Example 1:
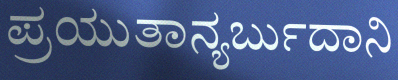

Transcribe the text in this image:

ಪ್ರಯುತಾನ್ಯರ್ಬುದಾನಿ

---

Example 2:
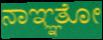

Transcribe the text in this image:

ನಾಞ್ಞತೋ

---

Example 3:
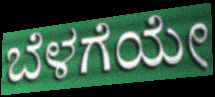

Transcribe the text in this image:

ಬೆಳಗೆಯೇ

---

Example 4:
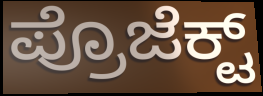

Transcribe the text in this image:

ಪ್ರೊಜೆಕ್ಟ್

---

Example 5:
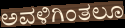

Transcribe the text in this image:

ಅವಳಿಗಿಂತಲೂ